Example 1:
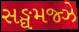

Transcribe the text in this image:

સઙ્ઘમજ્ઝે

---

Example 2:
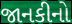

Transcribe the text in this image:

જાનકીનો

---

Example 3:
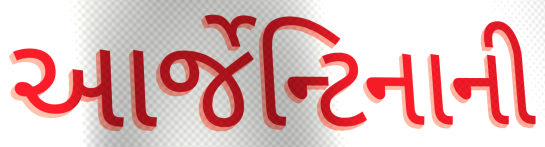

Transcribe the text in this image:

આર્જેન્ટિનાની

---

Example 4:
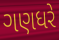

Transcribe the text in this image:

ગણધરે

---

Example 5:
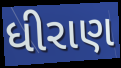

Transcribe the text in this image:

ધીરાણ